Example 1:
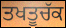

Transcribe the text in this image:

ਤਖਤੂਚੱਕ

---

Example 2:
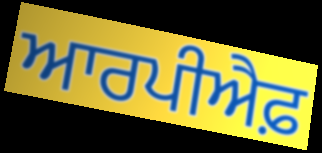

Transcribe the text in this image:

ਆਰਪੀਐਫ਼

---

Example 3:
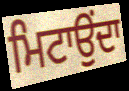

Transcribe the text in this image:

ਮਿਟਾਉਂਦਾ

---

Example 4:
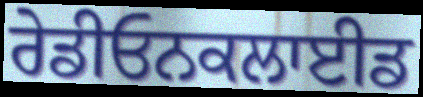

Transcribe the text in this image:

ਰੇਡੀਓਨਕਲਾਈਡ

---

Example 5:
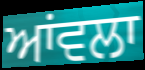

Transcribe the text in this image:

ਆਂਵਲਾ